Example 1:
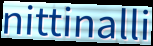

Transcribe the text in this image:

nittinalli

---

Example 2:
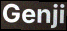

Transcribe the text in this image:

Genji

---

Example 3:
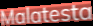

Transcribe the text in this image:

Malatesta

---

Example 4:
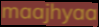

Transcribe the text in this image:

maajhyaa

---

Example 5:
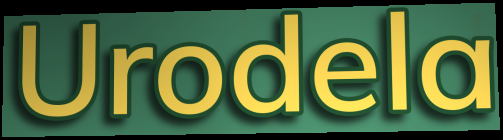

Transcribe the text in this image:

Urodela